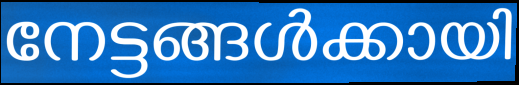
നേട്ടങ്ങൾക്കായി